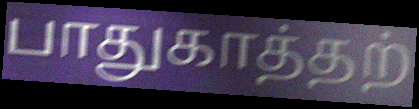
பாதுகாத்தற்